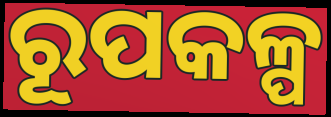
ରୂପକଳ୍ପ